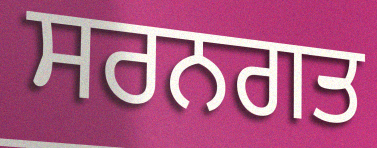
ਸਰਨਗਤ